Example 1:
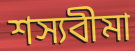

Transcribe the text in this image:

শস্যবীমা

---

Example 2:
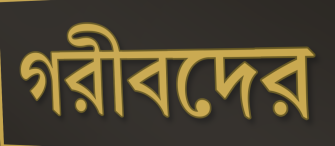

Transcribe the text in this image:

গরীবদের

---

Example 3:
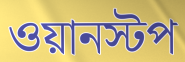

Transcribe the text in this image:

ওয়ানস্টপ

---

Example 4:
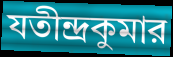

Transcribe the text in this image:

যতীন্দ্রকুমার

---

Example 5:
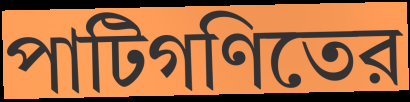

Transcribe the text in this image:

পাটিগণিতের